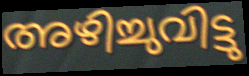
അഴിച്ചുവിട്ടു